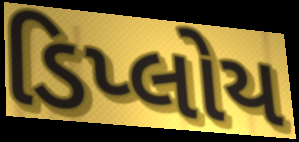
ડિપ્લોય